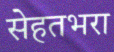
सेहतभरा